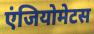
एंजियोमेटस